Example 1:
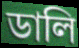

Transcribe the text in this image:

ডালি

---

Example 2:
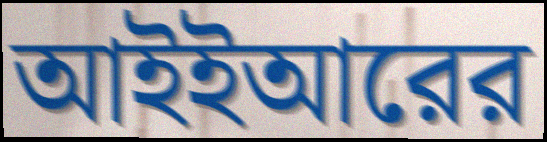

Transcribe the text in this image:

আইইআরের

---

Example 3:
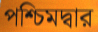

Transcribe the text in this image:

পশ্চিমদ্বার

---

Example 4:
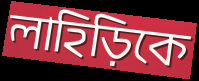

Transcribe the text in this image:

লাহিড়িকে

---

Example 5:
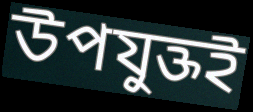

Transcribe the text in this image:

উপযুক্তই